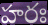
హరః